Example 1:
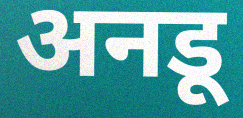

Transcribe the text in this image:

अनडू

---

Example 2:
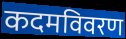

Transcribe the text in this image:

कदमविवरण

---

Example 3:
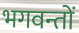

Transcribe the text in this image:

भगवन्तों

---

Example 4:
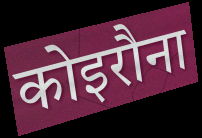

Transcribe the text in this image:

कोइरौना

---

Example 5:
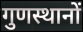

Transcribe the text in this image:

गुणस्थानों